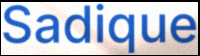
Sadique